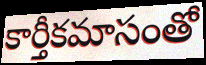
కార్తీకమాసంతో